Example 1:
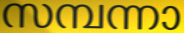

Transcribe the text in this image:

സമ്പന്നാ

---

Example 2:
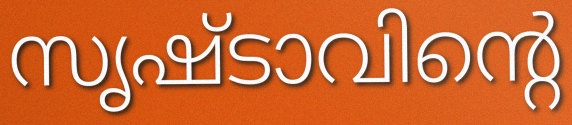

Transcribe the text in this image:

സൃഷ്ടാവിന്റെ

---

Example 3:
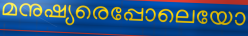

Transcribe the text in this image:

മനുഷ്യരെപ്പോലെയോ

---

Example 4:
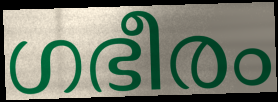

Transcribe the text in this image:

ഗഭീരം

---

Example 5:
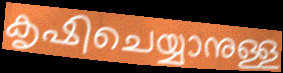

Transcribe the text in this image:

കൃഷിചെയ്യാനുള്ള